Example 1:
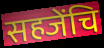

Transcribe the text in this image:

सहजेंचि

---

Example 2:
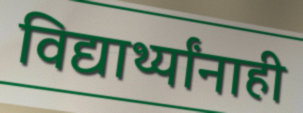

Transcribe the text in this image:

विद्यार्थ्यांनाही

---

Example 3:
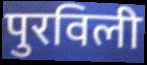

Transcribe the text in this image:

पुरविली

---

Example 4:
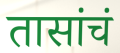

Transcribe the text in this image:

तासांचं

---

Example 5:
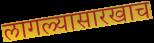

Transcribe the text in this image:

लागल्यासारखाच